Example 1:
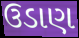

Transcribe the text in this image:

ઉડાણ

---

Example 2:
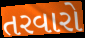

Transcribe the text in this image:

તરવારો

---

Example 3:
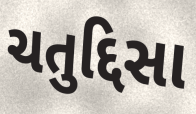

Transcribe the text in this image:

ચતુદ્દિસા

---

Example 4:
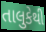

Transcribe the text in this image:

તાલુકેથી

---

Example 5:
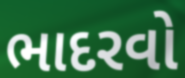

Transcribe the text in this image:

ભાદરવો